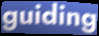
guiding